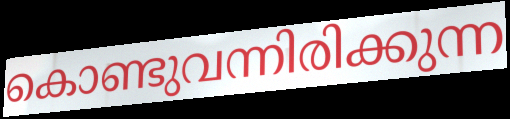
കൊണ്ടുവന്നിരിക്കുന്ന